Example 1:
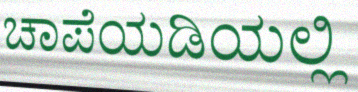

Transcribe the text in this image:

ಚಾಪೆಯಡಿಯಲ್ಲಿ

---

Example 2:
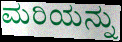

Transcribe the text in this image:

ಮರಿಯನ್ನು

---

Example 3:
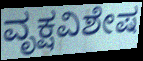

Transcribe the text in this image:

ವೃಕ್ಷವಿಶೇಷ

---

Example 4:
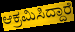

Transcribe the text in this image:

ಆಕ್ರಮಿಸಿದ್ದಾರೆ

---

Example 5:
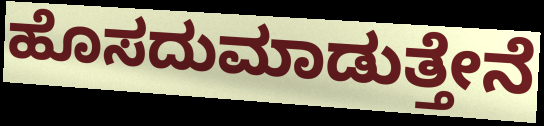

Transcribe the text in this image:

ಹೊಸದುಮಾಡುತ್ತೇನೆ